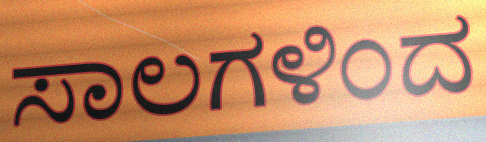
ಸಾಲಗಳಿಂದ